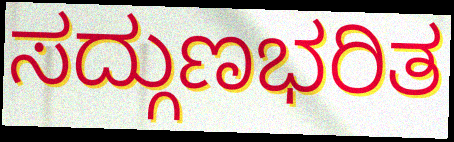
ಸದ್ಗುಣಭರಿತ